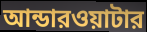
আন্ডারওয়াটার